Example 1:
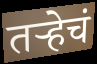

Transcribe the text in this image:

तर्‍हेचं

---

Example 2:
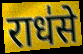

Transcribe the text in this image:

राध॑से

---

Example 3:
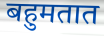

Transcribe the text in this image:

बहुमतात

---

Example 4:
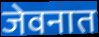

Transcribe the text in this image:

जेवनात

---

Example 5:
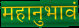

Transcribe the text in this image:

महानुभावं